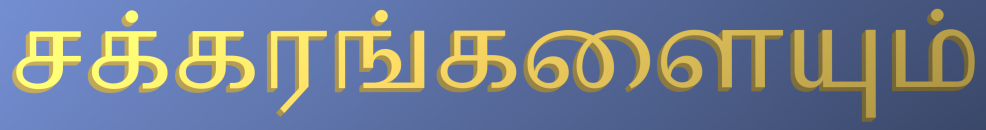
சக்கரங்களையும்